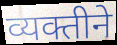
व्यक्तीने